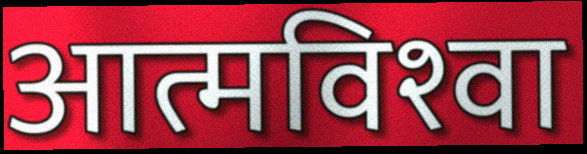
आत्मविश्वा